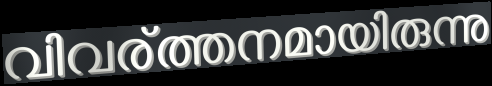
വിവര്ത്തനമായിരുന്നു